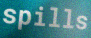
spills